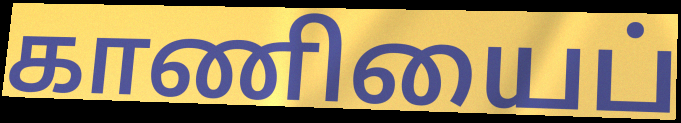
காணியைப்